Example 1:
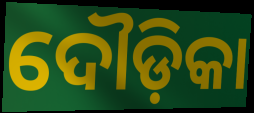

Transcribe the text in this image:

ଦୌଡ଼ିକା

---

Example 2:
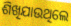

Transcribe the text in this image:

ଶିଖିଯାଉଥିଲେ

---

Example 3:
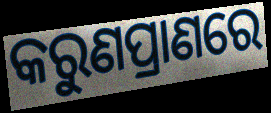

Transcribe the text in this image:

କରୁଣପ୍ରାଣରେ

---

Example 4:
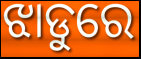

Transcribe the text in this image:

ଝାଡୁରେ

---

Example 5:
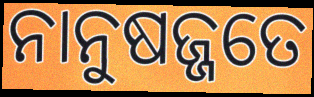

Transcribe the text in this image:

ନାନୁଷଜ୍ଜତେ